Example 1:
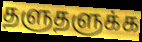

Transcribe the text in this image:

தளுதளுக்க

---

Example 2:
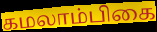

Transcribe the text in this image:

கமலாம்பிகை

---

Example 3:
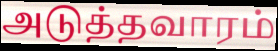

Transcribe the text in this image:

அடுத்தவாரம்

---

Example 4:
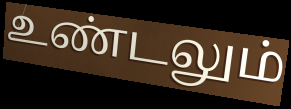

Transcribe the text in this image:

உண்டலும்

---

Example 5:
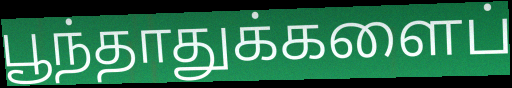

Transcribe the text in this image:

பூந்தாதுக்களைப்